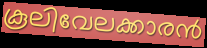
കൂലിവേലക്കാരൻ